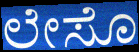
ಲೇಸೊ